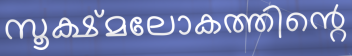
സൂക്ഷ്മലോകത്തിന്റെ